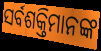
ସର୍ବଶକ୍ତିମାନଙ୍କ